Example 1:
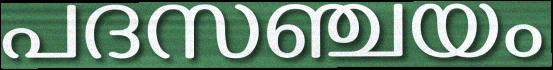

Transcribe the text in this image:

പദസഞ്ചയം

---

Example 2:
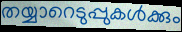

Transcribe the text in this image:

തയ്യാറെടുപ്പുകൾക്കും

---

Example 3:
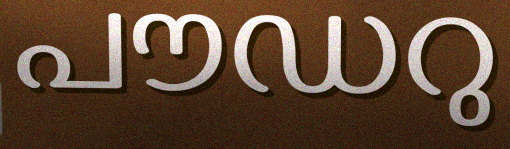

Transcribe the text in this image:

പൗഡറു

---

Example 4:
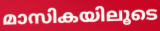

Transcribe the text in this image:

മാസികയിലൂടെ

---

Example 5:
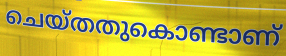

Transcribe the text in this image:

ചെയ്തതുകൊണ്ടാണ്